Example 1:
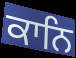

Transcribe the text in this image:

ਕਾਨਿ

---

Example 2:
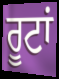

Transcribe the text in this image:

ਰੂਟਾਂ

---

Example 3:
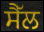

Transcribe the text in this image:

ਸੈੱਲ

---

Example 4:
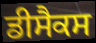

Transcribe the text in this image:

ਡੀਸੈਕਸ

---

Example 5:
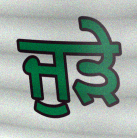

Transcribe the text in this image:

ਜੁੜੇ